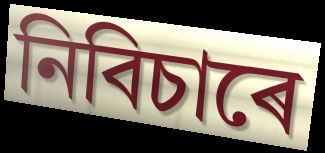
নিবিচাৰে